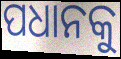
ପଧାନକୁ